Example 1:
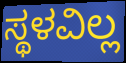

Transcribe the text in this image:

ಸ್ಥಳವಿಲ್ಲ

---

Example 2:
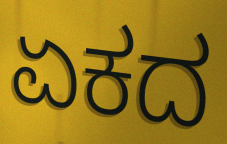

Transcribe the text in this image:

ಏಕದ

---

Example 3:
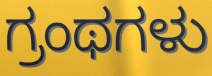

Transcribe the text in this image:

ಗ್ರಂಥಗಳು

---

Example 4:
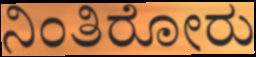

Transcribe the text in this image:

ನಿಂತಿರೋರು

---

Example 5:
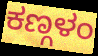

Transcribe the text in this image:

ಕಣ್ಗಳಂ